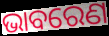
ଭାବରେଣ